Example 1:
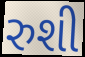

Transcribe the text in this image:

રુશી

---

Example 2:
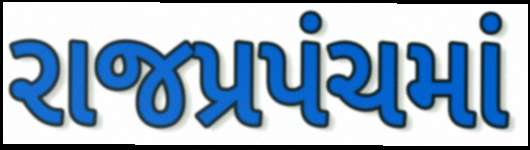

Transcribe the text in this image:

રાજપ્રપંચમાં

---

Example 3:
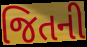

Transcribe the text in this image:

જિતની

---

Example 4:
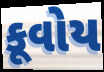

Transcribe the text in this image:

કૂવોય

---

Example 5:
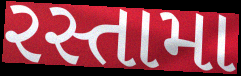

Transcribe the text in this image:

રસ્તામા